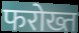
फरोख्‍त